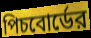
পিচবোর্ডের